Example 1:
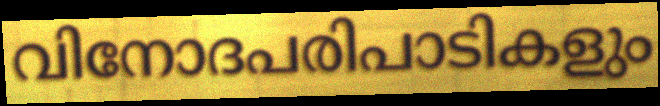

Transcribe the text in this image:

വിനോദപരിപാടികളും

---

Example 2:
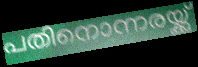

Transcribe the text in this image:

പതിനൊന്നരയ്ക്കു്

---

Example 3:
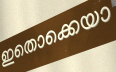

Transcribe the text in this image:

ഇതൊക്കെയാ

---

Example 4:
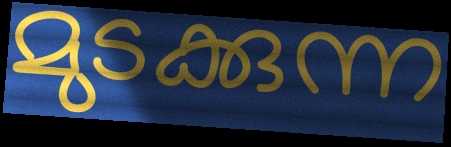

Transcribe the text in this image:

മുടക്കുന്ന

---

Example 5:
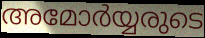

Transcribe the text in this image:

അമോർയ്യരുടെ